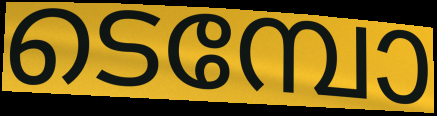
ടെമ്പോ